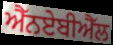
ਐੱਨਏਬੀਐੱਲ